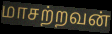
மாசற்றவன்